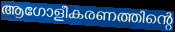
ആഗോളീകരണത്തിന്റെ